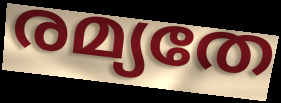
രമ്യതേ